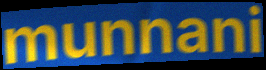
munnani